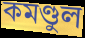
কমণ্ডুল